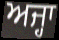
ਅਜ੍ਹਾ